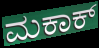
ಮಕಾಕ್